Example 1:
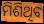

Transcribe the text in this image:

ମିଶିଥିବ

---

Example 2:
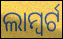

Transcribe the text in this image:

ଲାମ୍ବର୍ଟ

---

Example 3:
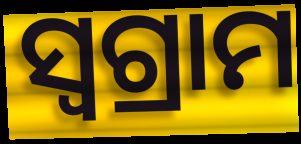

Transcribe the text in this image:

ସ୍ୱଗ୍ରାମ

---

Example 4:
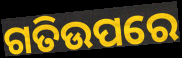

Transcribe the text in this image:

ଗତିଉପରେ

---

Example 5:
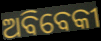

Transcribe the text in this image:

ଅବିବେକୀ